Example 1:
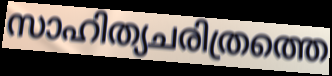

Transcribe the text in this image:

സാഹിത്യചരിത്രത്തെ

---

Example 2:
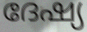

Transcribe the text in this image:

ദേഷ്യ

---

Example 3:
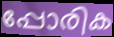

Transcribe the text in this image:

പ്പോരിക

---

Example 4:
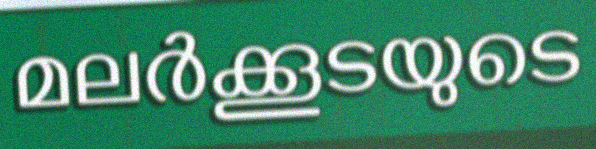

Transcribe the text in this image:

മലർക്കൂടയുടെ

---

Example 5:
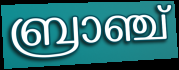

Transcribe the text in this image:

ബ്രാഞ്ച്